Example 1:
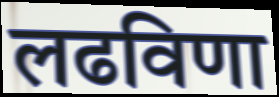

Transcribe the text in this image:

लढविणा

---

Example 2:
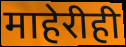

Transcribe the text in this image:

माहेरीही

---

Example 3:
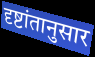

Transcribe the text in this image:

दृष्टांतानुसार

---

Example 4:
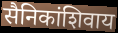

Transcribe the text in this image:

सैनिकांशिवाय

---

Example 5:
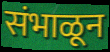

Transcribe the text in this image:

संभाळून